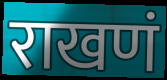
राखणं